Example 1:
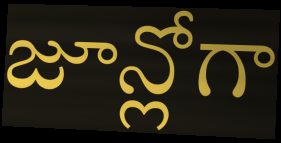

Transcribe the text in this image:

జూన్లోగా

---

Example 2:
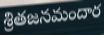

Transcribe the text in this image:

శ్రితజనమందార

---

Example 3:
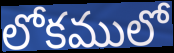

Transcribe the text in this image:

లోకములో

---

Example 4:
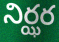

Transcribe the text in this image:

నిర్ఝర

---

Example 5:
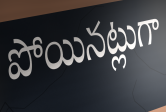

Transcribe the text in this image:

పోయినట్లుగా